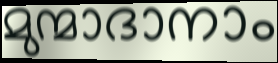
മുന്മാദാനാം